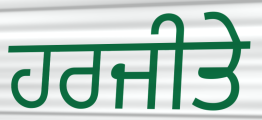
ਹਰਜੀਤੇ